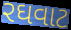
રઘવાટ